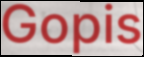
Gopis